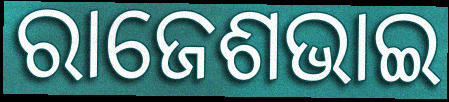
ରାଜେଶଭାଇ